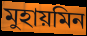
মুহায়মিন